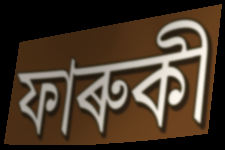
ফাৰুকী